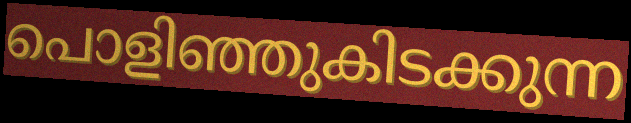
പൊളിഞ്ഞുകിടക്കുന്ന